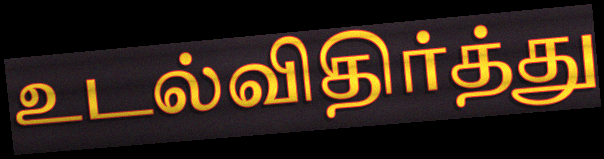
உடல்விதிர்த்து